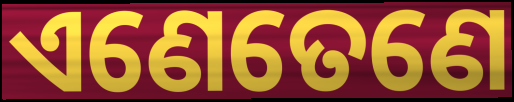
ଏଣେତେଣେ